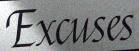
Excuses